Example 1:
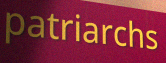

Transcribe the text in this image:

patriarchs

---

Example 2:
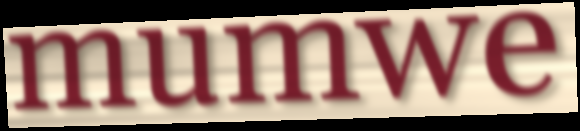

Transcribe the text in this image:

mumwe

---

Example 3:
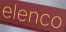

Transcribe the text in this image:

elenco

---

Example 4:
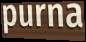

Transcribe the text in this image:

purna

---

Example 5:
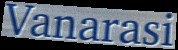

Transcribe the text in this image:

Vanarasi